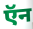
ऍन